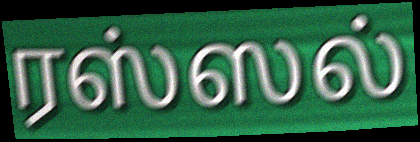
ரஸ்ஸல்